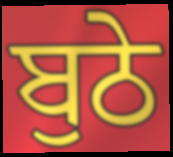
ਬੁਠੇ